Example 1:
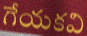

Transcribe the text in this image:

గేయకవి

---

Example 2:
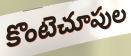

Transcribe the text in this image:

కొంటెచూపుల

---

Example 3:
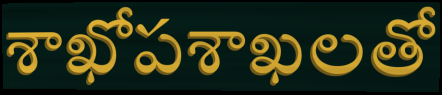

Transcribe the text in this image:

శాఖోపశాఖలతో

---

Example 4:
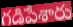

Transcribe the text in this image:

గడిపేశారు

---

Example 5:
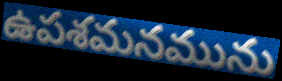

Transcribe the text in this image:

ఉపశమనమును